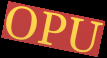
OPU